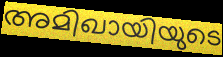
അമിഖായിയുടെ